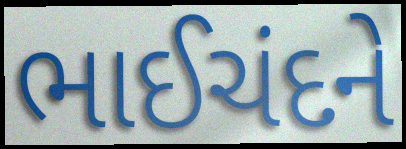
ભાઈચંદને